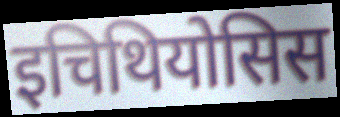
इचिथियोसिस